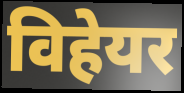
विहेयर